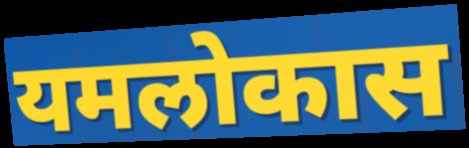
यमलोकास